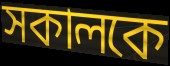
সকালকে